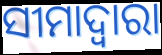
ସୀମାଦ୍ଵାରା